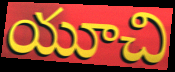
యూచి